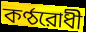
কণ্ঠরোধী